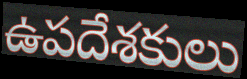
ఉపదేశకులు